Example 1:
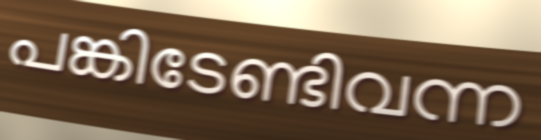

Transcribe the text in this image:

പങ്കിടേണ്ടിവന്ന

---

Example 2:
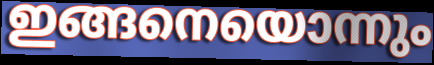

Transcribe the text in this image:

ഇങ്ങനെയൊന്നും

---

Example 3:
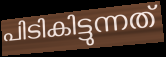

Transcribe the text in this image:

പിടികിട്ടുന്നത്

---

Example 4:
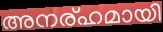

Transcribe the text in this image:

അനര്ഹമായി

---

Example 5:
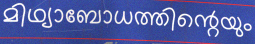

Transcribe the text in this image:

മിഥ്യാബോധത്തിന്റെയും